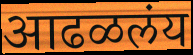
आढळलंय